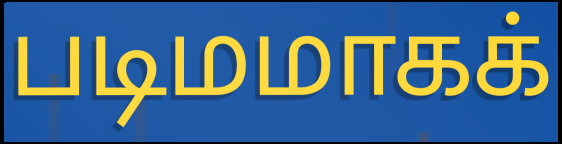
படிமமாகக்